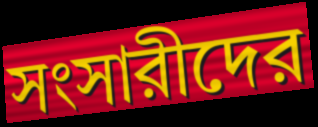
সংসারীদের